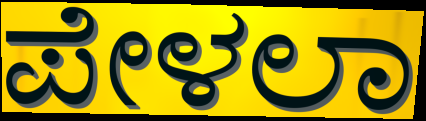
ಪೇಳಲಾ